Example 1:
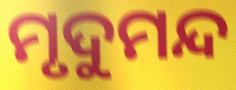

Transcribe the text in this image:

ମୃଦୁମନ୍ଦ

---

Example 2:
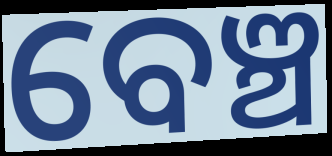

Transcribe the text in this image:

ବେଞ୍ଚ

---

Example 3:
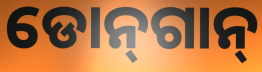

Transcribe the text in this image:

ଡୋନ୍‌ଗାନ୍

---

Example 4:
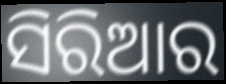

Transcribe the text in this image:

ସିରିଆର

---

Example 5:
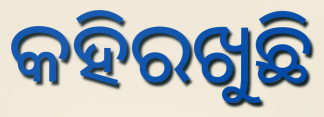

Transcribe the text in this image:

କହିରଖୁଛି